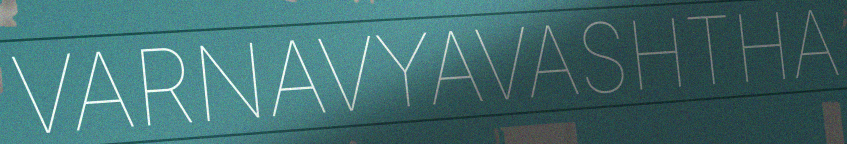
VARNAVYAVASHTHA